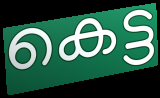
കെട്ട